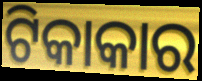
ଟିକାକାର